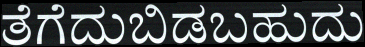
ತೆಗೆದುಬಿಡಬಹುದು